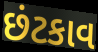
છંટકાવ